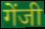
गेंजी